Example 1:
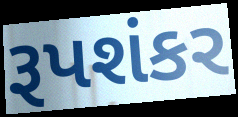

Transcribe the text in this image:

રૂપશંકર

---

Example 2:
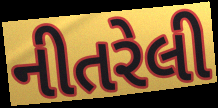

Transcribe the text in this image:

નીતરેલી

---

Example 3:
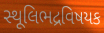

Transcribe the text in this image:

સ્થૂલિભદ્રવિષયક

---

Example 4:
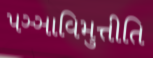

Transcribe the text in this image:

પઞ્ઞાવિમુત્તીતિ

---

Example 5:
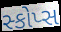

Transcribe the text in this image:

સ્કોપ્સ